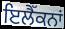
ਇਲੈੱਕਨਾਂ